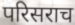
परिसराच